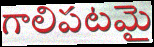
గాలిపటమై